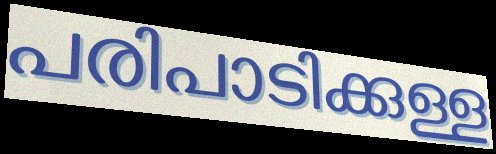
പരിപാടിക്കുള്ള